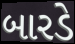
બારડે